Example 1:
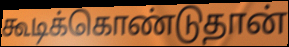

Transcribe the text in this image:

கூடிக்கொண்டுதான்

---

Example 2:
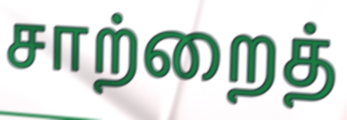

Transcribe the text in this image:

சாற்றைத்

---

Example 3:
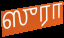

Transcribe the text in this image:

ஸுரா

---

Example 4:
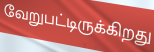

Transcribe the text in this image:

வேறுபட்டிருக்கிறது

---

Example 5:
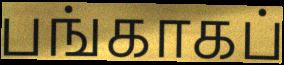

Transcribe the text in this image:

பங்காகப்